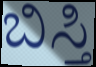
ಬಿಸ್ತಿ